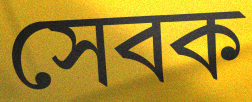
সেবক